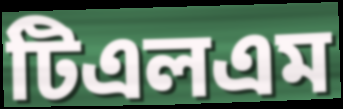
টিএলএম